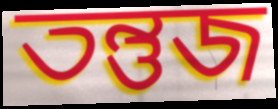
তন্তুজ